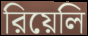
রিয়েলি